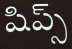
షిప్స్